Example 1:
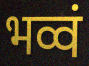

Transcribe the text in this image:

भव्वं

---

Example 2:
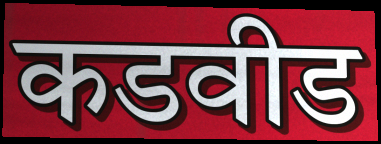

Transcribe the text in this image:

कडवीड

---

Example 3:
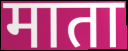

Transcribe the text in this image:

माता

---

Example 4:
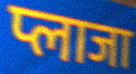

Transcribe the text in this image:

प्लाजा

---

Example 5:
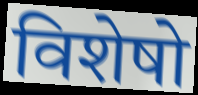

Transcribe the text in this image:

विशेषो